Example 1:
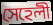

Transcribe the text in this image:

সেহেলী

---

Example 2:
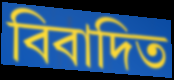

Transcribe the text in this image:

বিবাদিত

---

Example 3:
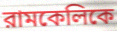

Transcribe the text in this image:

রামকেলিকে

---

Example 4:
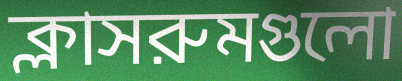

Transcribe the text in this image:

ক্লাসরুমগুলো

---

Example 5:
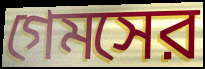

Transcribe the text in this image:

গেমসের